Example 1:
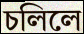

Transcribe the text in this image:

চলিলে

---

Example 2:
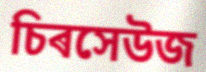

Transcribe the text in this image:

চিৰসেউজ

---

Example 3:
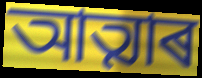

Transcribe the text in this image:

আত্মাৰ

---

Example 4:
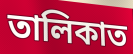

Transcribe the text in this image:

তালিকাত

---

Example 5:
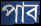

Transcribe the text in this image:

পাব